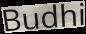
Budhi